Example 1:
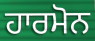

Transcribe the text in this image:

ਹਾਰਮੋਨ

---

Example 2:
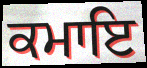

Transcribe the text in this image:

ਕਮਾਇ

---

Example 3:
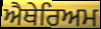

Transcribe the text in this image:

ਐਥੇਰਿਅਮ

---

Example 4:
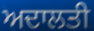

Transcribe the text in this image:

ਅਦਾਲਤੀ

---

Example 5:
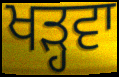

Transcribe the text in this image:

ਖੜ੍ਹਵਾ